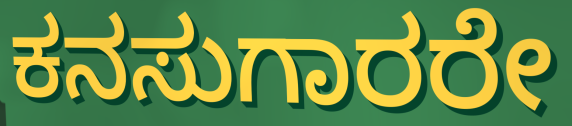
ಕನಸುಗಾರರೇ